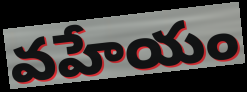
వహేయం